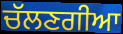
ਚੱਲਣਗੀਆ